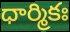
ధార్మికః